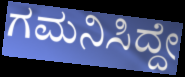
ಗಮನಿಸಿದ್ದೇ